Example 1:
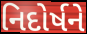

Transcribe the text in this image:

નિદોર્ષને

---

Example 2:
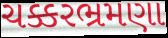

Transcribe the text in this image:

ચક્કરભ્રમણા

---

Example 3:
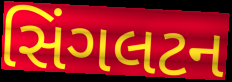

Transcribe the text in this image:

સિંગલટન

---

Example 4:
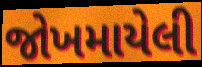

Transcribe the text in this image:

જોખમાયેલી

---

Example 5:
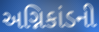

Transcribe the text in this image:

અગ્નિકાંડની